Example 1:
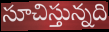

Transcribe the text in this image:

సూచిస్తున్నది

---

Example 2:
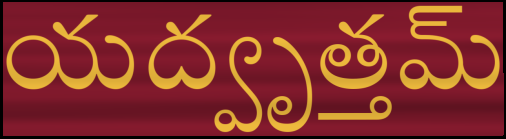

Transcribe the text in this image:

యద్వృత్తమ్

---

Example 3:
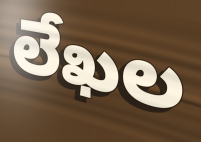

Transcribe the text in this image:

లేఖల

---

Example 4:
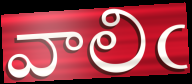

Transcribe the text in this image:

వాలిఁ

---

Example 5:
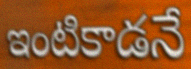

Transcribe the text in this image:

ఇంటికాడనే